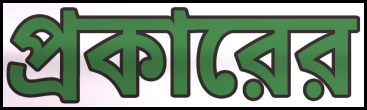
প্রকারের